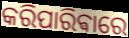
କରିପାରିଵାରେ